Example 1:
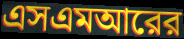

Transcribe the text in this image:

এসএমআরের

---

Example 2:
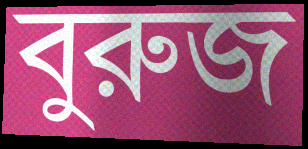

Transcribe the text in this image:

বুরুজ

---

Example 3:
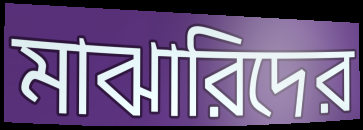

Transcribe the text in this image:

মাঝারিদের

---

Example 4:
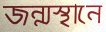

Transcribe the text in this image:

জন্মস্থানে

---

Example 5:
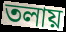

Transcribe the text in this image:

তলায়